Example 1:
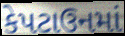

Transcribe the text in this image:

કેપટાઉનમાં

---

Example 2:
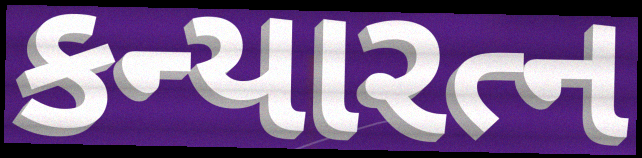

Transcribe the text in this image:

કન્યારત્ન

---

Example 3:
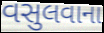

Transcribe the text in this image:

વસુલવાના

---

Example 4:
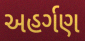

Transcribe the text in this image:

અહર્ગણ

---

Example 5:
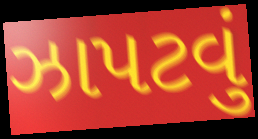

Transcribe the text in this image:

ઝાપટવું